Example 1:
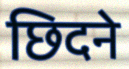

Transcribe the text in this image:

छिदने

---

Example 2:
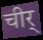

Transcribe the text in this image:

चीर्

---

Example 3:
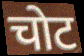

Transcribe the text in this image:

चोट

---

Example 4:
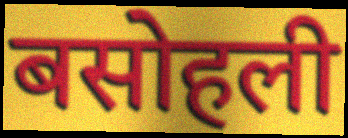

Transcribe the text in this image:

बसोहली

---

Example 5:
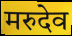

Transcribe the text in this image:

मरुदेव